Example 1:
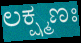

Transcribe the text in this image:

ಲಕ್ಷ್ಮಣಃ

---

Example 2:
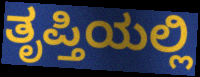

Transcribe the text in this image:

ತೃಪ್ತಿಯಲ್ಲಿ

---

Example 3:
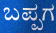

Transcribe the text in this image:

ಬಪ್ಪಗ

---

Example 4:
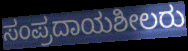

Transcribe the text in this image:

ಸಂಪ್ರದಾಯಶೀಲರು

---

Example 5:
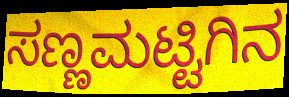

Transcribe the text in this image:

ಸಣ್ಣಮಟ್ಟಿಗಿನ